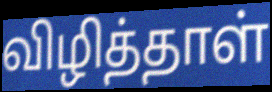
விழித்தாள்